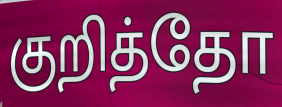
குறித்தோ